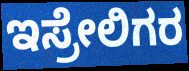
ಇಸ್ರೇಲಿಗರ